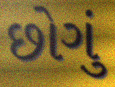
છોગું